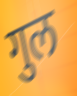
गुल